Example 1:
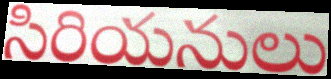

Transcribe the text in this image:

సిరియనులు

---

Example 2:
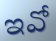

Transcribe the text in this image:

ఇవో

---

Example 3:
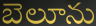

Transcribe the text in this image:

బెలూను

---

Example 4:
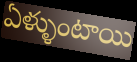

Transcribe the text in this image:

ఏళ్ళుంటాయి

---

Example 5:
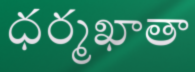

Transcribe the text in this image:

ధర్మఖాతా